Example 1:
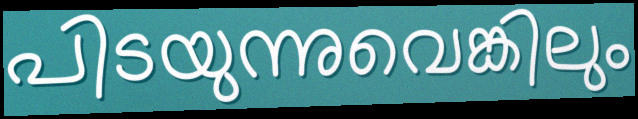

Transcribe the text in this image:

പിടയുന്നുവെങ്കിലും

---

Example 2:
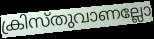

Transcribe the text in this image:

ക്രിസ്തുവാണല്ലോ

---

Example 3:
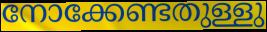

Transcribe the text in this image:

നോക്കേണ്ടതുള്ളു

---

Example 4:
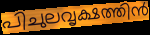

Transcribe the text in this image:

പിചുലവൃക്ഷത്തിൻ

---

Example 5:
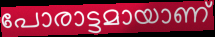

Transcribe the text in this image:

പോരാട്ടമായാണ്